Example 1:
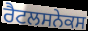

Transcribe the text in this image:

ਰੈਟਲਸਨੇਕਸ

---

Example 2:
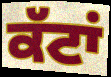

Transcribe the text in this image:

ਕੱਟਾਂ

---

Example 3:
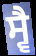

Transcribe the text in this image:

ਸ੍ਵੈ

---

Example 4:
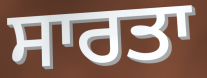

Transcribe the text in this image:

ਸਾਰਤਾ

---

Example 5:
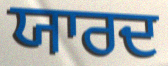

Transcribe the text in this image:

ਯਾਰਦ